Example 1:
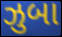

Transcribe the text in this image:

ઝુબા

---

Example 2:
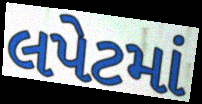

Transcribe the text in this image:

લપેટમાં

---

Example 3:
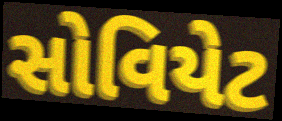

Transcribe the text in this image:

સોવિયેટ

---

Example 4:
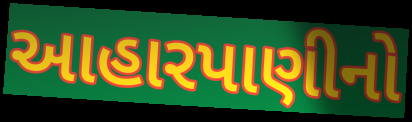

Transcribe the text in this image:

આહારપાણીનો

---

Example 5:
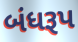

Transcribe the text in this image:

બંધરૂપ